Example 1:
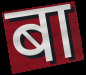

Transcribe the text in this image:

बा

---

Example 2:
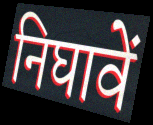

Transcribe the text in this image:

निघावें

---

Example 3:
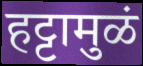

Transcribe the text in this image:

हट्टामुळं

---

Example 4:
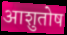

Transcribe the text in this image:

आशुतोष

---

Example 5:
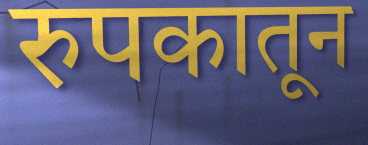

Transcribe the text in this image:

रुपकातून